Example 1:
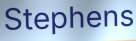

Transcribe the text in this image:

Stephens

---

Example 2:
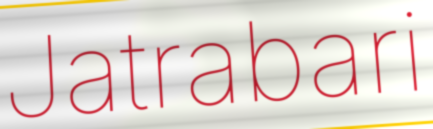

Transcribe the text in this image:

Jatrabari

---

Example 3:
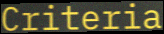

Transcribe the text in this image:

Criteria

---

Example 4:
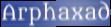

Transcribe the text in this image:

Arphaxad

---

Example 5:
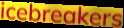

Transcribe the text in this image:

icebreakers